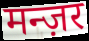
मन्ज़र